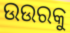
ଉଉରକୁ